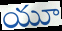
యూ